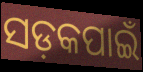
ସଡ଼କପାଇଁ